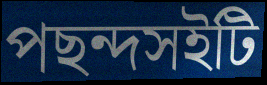
পছন্দসইটি